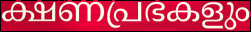
ക്ഷണപ്രഭകളും